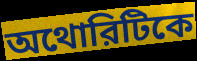
অথোরিটিকে